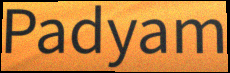
Padyam